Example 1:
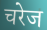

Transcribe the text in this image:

चरेज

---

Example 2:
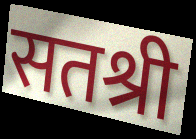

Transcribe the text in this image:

सतश्री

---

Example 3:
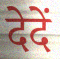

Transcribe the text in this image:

देदें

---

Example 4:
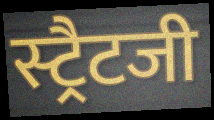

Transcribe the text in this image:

स्‍ट्रैटजी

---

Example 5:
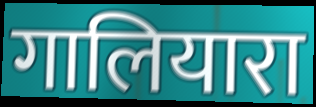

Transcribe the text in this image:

गालियारा